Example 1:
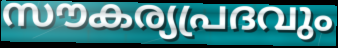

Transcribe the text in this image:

സൗകര്യപ്രദവും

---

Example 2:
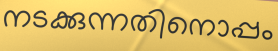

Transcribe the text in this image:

നടക്കുന്നതിനൊപ്പം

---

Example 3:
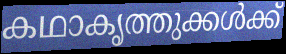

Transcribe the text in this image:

കഥാകൃത്തുക്കൾക്ക്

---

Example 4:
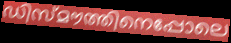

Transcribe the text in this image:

ഡിസ്മൗത്തിനെപ്പോലെ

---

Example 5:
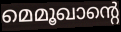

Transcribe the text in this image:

മെമൂഖാന്റെ